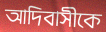
আদিবাসীকে